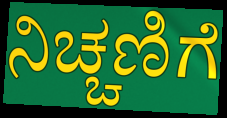
ನಿಚ್ಚಣಿಗೆ